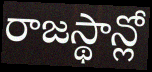
రాజస్థాన్లో